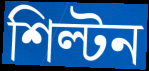
শিল্টন